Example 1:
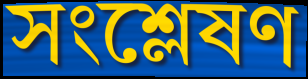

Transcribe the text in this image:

সংশ্লেষণ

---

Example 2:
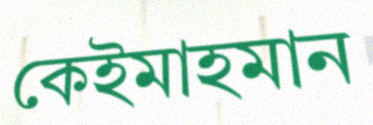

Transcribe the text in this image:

কেইমাহমান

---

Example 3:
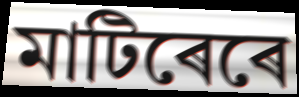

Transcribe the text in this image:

মাটিৰেৰে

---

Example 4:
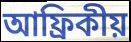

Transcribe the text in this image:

আফ্ৰিকীয়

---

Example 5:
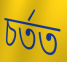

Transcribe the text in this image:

চৰ্তত